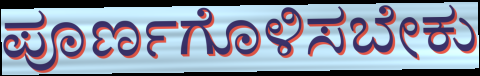
ಪೂರ್ಣಗೊಳಿಸಬೇಕು